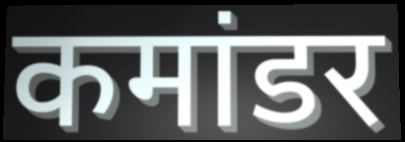
कमांडर